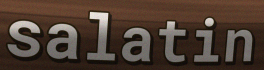
salatin